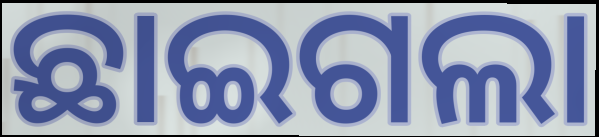
ଛାଇଗଲା